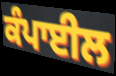
ਕੰਪਾਈਲ